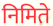
निमिते